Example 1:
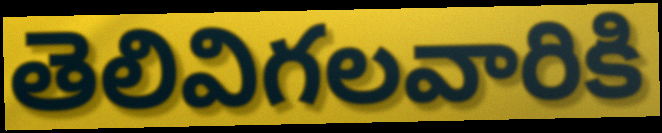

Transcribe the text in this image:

తెలివిగలవారికి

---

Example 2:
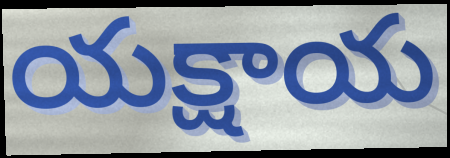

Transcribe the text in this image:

యక్షాయ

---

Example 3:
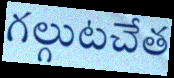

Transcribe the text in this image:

గల్గుటచేత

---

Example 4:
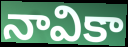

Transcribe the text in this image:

నావికా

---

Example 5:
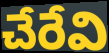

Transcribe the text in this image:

చేరేవి